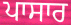
ਪਾਸਾਰ